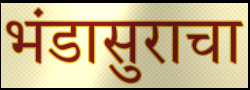
भंडासुराचा